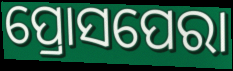
ପ୍ରୋସପେରା